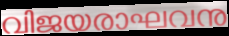
വിജയരാഘവനു